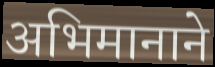
अभिमानाने